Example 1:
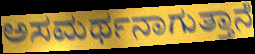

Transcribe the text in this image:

ಅಸಮರ್ಥನಾಗುತ್ತಾನೆ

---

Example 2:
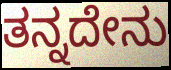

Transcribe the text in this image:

ತನ್ನದೇನು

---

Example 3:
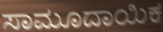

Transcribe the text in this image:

ಸಾಮೂದಾಯಿಕ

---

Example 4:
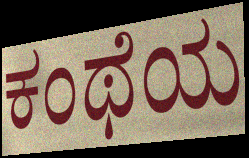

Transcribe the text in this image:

ಕಂಥೆಯ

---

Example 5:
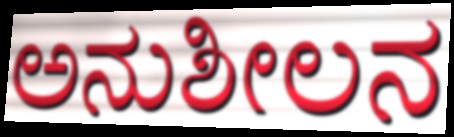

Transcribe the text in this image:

ಅನುಶೀಲನ